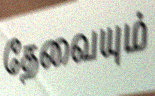
தேவையும்